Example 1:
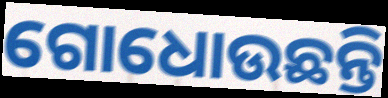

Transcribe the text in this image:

ଗୋଧୋଉଛନ୍ତି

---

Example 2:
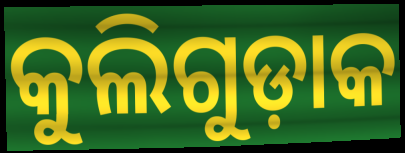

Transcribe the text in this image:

କୁଲିଗୁଡ଼ାକ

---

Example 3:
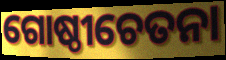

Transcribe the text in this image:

ଗୋଷ୍ଠୀଚେତନା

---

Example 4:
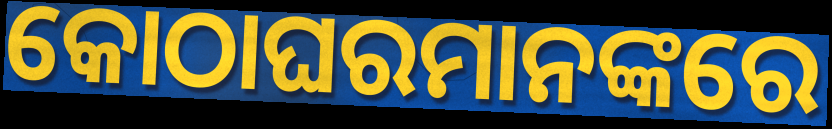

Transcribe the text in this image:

କୋଠାଘରମାନଙ୍କରେ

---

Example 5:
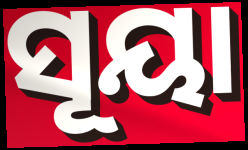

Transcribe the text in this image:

ସୂୟା